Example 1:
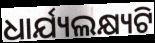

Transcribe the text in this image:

ଧାର୍ଯ୍ୟଲକ୍ଷ୍ୟଟି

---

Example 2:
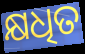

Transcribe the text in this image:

କ୍ଷଧିତ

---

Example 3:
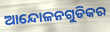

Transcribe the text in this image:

ଆନ୍ଦୋଳନଗୁଡିକର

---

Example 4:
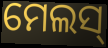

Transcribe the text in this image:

ମେଲସ୍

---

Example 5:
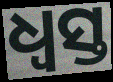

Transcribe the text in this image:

ଧ୍ବସ୍ତ